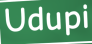
Udupi